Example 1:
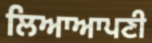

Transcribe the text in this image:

ਲਿਆਆਪਣੀ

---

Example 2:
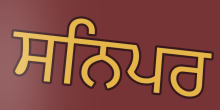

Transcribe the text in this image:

ਸਨਿਪਰ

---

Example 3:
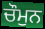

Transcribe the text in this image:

ਚੌਮੁਨ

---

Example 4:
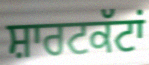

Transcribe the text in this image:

ਸ਼ਾਰਟਕੱਟਾਂ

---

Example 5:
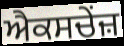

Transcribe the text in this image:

ਐਕਸਚੇਂਜ਼